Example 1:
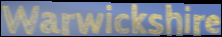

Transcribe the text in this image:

Warwickshire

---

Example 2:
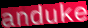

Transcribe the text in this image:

anduke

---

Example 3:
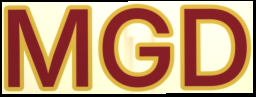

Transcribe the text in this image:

MGD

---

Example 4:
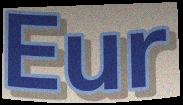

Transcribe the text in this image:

Eur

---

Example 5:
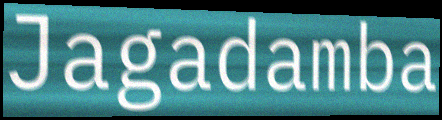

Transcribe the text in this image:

Jagadamba